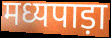
मध्यपाड़ा